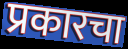
प्रकारचा